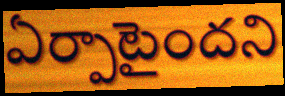
ఏర్పాటైందని